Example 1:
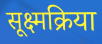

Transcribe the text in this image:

सूक्ष्मक्रिया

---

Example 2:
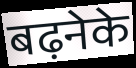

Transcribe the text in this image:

बढ़नेके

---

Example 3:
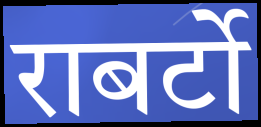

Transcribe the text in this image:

राबर्टो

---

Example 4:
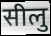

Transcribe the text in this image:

सीलु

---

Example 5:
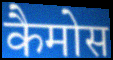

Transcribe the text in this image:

कैमोस